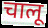
चालू